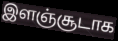
இளஞ்சூடாக